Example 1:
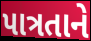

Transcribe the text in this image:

પાત્રતાને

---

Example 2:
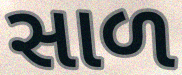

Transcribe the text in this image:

સાળ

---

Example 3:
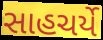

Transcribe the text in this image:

સાહચર્યે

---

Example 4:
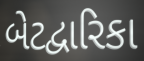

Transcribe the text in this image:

બેટદ્વારિકા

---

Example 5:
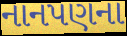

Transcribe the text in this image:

નાનપણના